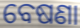
ବେଷଣା